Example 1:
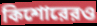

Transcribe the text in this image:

কিশোরেরও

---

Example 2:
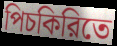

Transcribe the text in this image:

পিচকিরিতে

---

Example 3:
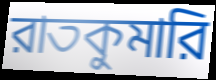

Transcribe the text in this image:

রাতকুমারি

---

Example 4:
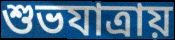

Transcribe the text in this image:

শুভযাত্রায়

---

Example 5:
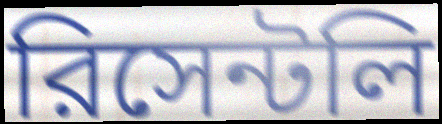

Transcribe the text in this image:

রিসেন্টলি